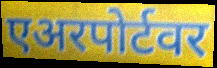
एअरपोर्टवर